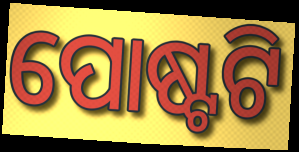
ପୋଷ୍ଟଟି